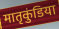
मातृकुंडिया